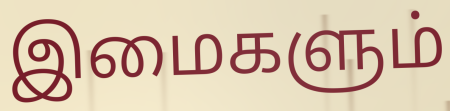
இமைகளும்